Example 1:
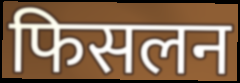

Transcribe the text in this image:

फिसलन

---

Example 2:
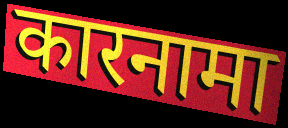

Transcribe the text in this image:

कारनामा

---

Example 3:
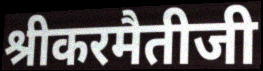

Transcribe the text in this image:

श्रीकरमैतीजी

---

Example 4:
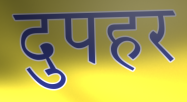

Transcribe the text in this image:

दुपहर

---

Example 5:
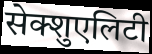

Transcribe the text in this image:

सेक्शुएलिटी